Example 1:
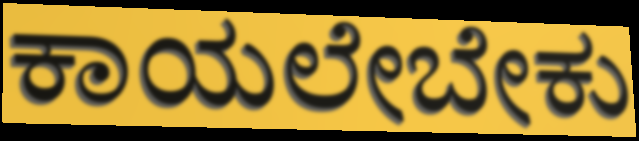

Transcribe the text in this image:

ಕಾಯಲೇಬೇಕು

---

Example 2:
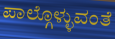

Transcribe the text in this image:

ಪಾಲ್ಗೊಳ್ಳುವಂತೆ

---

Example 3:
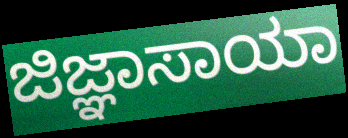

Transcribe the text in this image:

ಜಿಜ್ಞಾಸಾಯಾ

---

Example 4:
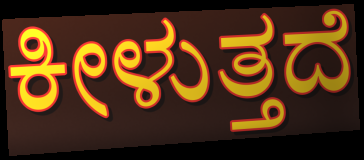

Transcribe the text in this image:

ಕೀಳುತ್ತದೆ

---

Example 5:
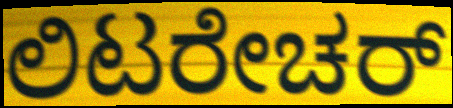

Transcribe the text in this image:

ಲಿಟರೇಚರ್